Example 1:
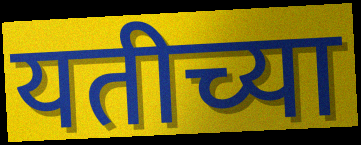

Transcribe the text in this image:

यतीच्या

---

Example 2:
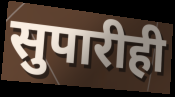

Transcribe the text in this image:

सुपारीही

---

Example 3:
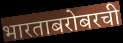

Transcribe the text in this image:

भारताबरोबरची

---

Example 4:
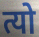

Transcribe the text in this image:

त्यो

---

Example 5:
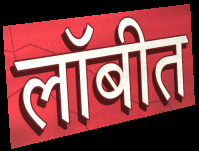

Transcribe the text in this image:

लॉबीत